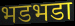
भडभडा